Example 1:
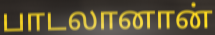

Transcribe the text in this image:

பாடலானான்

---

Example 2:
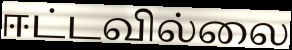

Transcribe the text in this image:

ஈட்டவில்லை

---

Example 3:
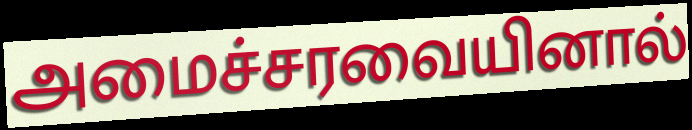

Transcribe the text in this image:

அமைச்சரவையினால்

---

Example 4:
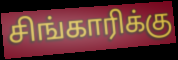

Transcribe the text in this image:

சிங்காரிக்கு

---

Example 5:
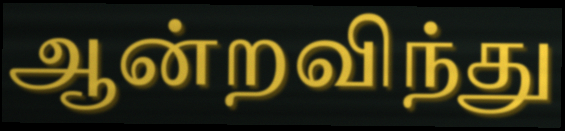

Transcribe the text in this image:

ஆன்றவிந்து